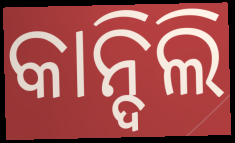
କାନ୍ଦିଲି